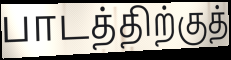
பாடத்திற்குத்